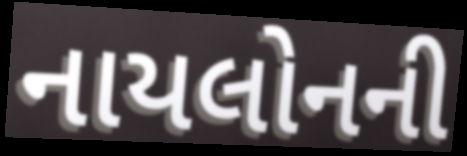
નાયલોનની